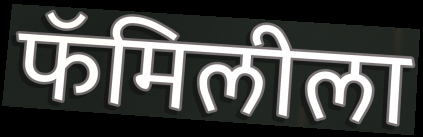
फॅमिलीला